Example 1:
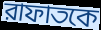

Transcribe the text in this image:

রাফাতকে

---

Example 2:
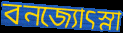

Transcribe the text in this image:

বনজ্যোৎস্না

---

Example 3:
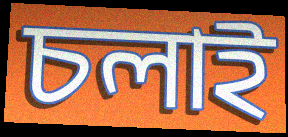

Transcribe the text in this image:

চলাই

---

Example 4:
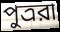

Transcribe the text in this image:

পুত্ররা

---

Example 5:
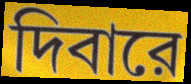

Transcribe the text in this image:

দিবারে